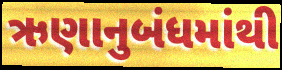
ઋણાનુબંધમાંથી